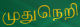
முதுநெறி